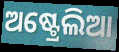
ଅଷ୍ଟ୍ରେଲିଆ